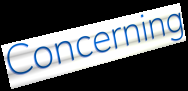
Concerning